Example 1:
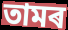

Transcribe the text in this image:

তামৰ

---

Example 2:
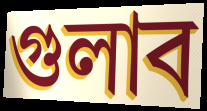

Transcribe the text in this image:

গুলাব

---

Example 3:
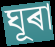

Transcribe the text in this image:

ঘূৰা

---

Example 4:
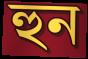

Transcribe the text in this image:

হুন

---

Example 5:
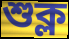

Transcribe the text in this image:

শুক্ল